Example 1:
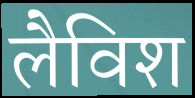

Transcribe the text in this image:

लैविश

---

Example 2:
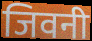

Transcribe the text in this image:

जिवनी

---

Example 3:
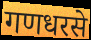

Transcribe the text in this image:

गणधरसे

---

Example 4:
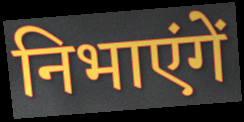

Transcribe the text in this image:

निभाएंगें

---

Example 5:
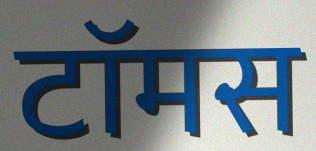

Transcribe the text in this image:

टॉमस